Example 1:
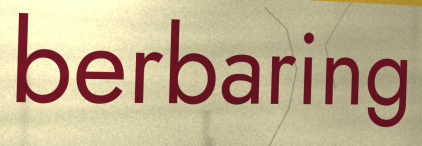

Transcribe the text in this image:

berbaring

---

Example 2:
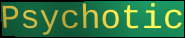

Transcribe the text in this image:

Psychotic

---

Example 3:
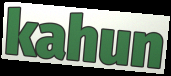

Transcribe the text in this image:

kahun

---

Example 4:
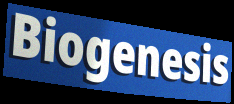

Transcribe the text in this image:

Biogenesis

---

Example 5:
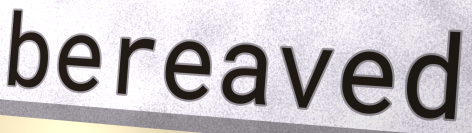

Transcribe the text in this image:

bereaved